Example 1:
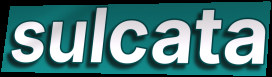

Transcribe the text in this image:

sulcata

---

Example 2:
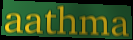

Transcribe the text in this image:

aathma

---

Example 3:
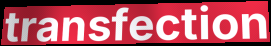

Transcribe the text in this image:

transfection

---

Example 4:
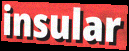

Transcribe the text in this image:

insular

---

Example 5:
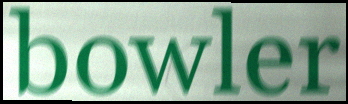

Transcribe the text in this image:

bowler